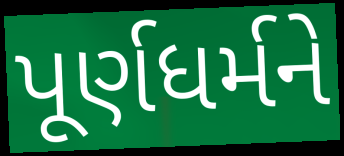
પૂર્ણધર્મને